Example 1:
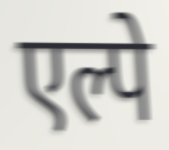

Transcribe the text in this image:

एल्पे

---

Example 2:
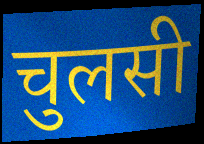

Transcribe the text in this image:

चुलसी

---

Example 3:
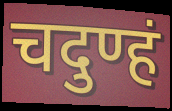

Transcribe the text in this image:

चदुण्हं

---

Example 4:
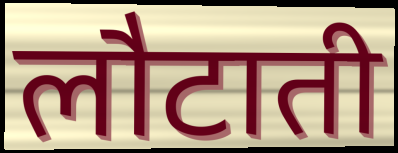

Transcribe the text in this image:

लौटाती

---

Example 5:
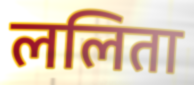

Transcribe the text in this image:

ललिता